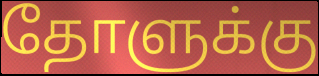
தோளுக்கு